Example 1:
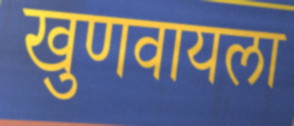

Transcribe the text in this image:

खुणवायला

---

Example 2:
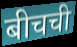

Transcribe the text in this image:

बीचची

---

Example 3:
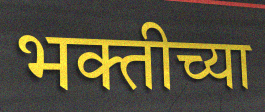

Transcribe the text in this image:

भक्तीच्या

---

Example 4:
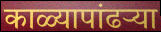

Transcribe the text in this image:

काळ्यापांढऱ्या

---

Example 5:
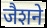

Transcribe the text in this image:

जैशने